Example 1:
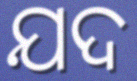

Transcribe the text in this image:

ଯଦ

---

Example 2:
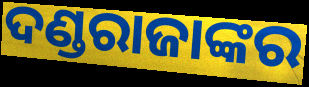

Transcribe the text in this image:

ଦଣ୍ଡରାଜାଙ୍କର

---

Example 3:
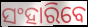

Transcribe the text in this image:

ସଂହାରିବେ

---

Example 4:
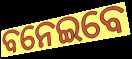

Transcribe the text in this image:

ବନେଇବେ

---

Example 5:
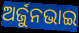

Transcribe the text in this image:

ଅର୍ଜୁନଭାଇ